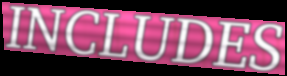
INCLUDES